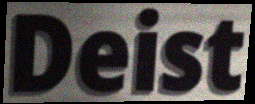
Deist